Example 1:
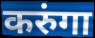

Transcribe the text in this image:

करुंगा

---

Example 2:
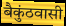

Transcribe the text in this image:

बैकुंठवासी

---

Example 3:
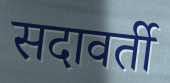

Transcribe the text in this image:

सदावर्ती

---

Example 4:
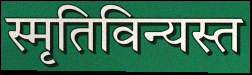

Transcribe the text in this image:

स्मृतिविन्यस्त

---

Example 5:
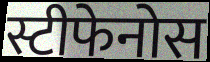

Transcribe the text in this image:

स्टीफेनोस